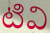
టివి